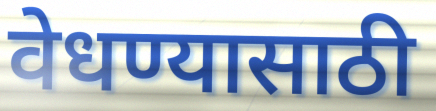
वेधण्यासाठी